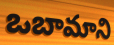
ఒబామాని